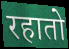
रहातो